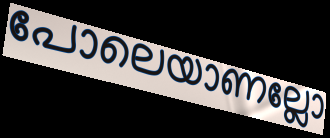
പോലെയാണല്ലോ